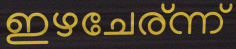
ഇഴചേര്ന്ന്